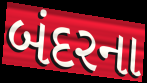
બંદરના